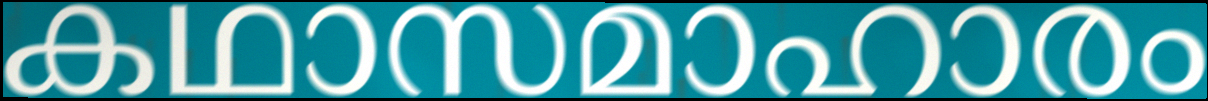
കഥാസമാഹാരം